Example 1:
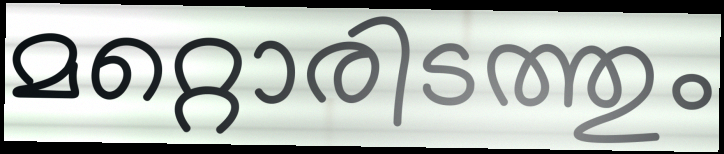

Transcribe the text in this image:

മറ്റൊരിടത്തും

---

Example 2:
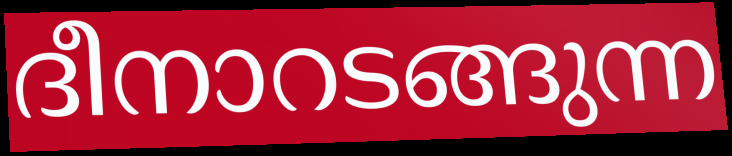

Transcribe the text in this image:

ദീനാറടങ്ങുന്ന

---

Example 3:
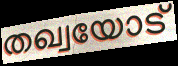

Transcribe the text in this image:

തഖ്വയോട്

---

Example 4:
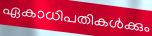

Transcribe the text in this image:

ഏകാധിപതികൾക്കും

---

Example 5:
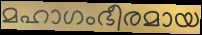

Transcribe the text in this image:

മഹാഗംഭീരമായ